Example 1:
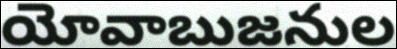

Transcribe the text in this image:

యోవాబుజనుల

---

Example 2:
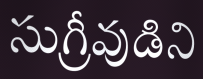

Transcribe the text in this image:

సుగ్రీవుడిని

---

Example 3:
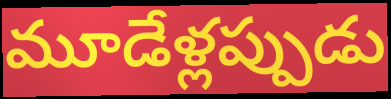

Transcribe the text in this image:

మూడేళ్లప్పుడు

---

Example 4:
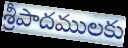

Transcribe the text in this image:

శ్రీపాదములకు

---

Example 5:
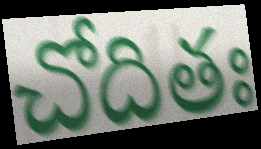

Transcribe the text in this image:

చోదితః